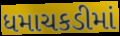
ધમાચકડીમાં